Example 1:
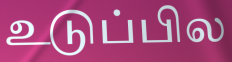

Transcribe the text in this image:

உடுப்பில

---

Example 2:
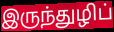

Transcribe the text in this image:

இருந்துழிப்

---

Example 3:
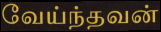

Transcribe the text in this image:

வேய்ந்தவன்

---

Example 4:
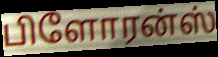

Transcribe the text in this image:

பிளோரன்ஸ்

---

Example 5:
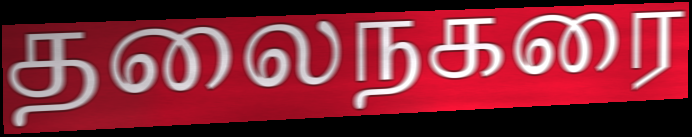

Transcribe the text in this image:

தலைநகரை